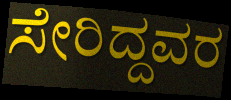
ಸೇರಿದ್ದವರ